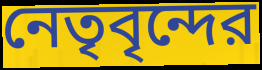
নেতৃবৃন্দের